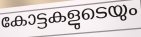
കോട്ടകളുടെയും